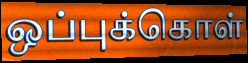
ஒப்புக்கொள்